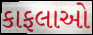
કાફલાઓ